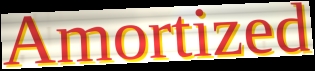
Amortized